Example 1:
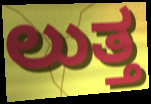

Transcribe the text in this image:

ಲುತ್ತ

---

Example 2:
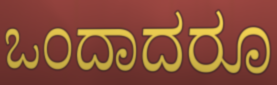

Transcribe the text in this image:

ಒಂದಾದರೂ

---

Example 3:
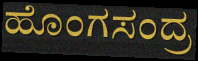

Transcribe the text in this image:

ಹೊಂಗಸಂದ್ರ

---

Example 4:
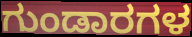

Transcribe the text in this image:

ಗುಂಡಾರಗಳ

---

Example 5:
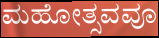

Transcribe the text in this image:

ಮಹೋತ್ಸವವೂ